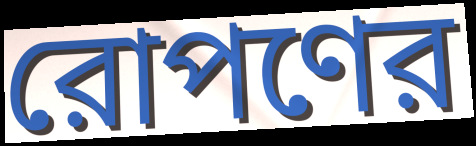
রোপণের